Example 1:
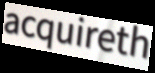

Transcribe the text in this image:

acquireth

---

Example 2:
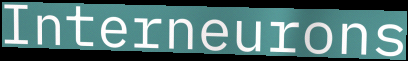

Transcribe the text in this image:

Interneurons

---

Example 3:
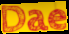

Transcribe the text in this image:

Dae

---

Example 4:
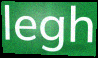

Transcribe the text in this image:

legh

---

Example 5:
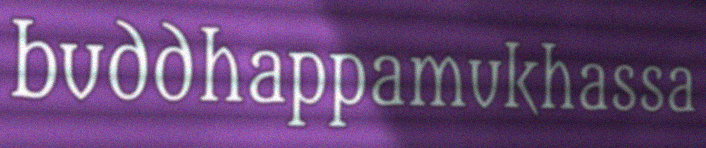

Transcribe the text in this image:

buddhappamukhassa